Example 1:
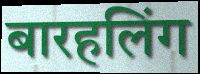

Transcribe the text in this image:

बारहलिंग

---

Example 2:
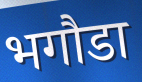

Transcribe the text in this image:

भगौडा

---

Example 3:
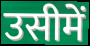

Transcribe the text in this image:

उसीमें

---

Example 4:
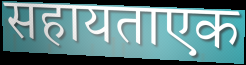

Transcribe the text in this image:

सहायताएक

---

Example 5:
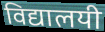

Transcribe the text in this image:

विद्यालयी